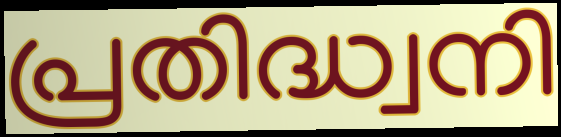
പ്രതിദ്ധ്വനി